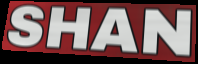
SHAN